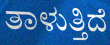
ತಾಳುತ್ತಿದೆ